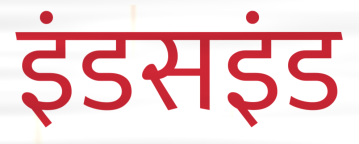
इंडसइंड